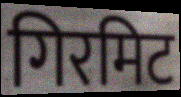
गिरमिट